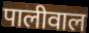
पालीवाल